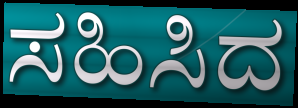
ಸಹಿಸಿದ